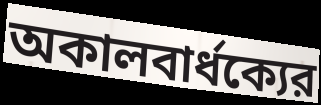
অকালবার্ধক্যের